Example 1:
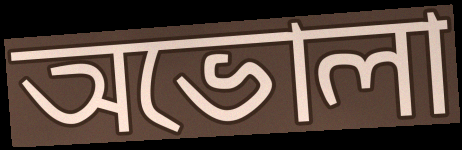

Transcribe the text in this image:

অভোলা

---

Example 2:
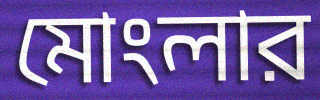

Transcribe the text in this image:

মোংলার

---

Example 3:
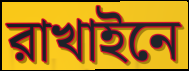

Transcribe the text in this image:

রাখাইনে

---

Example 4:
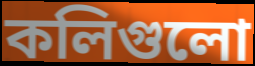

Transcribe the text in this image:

কলিগুলো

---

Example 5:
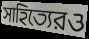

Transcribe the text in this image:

সাহিত্যেরও